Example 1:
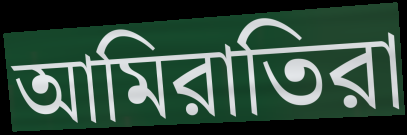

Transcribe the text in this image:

আমিরাতিরা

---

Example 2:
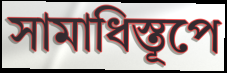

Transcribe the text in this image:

সামাধিস্তূপে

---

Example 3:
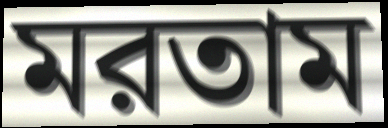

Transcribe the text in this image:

মরতাম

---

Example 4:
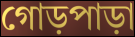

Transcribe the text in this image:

গোড়পাড়া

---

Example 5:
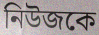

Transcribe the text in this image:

নিউজকে